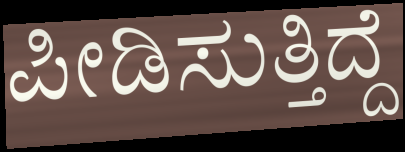
ಪೀಡಿಸುತ್ತಿದ್ದೆ